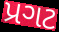
પ્રગટ